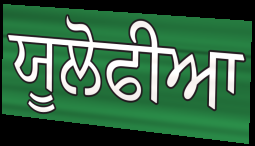
ਯੂਲੋਫੀਆ